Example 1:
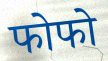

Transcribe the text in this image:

फोफो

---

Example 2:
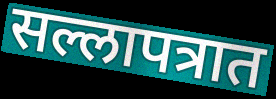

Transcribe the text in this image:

सल्लापत्रात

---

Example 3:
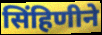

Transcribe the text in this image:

सिंहिणीने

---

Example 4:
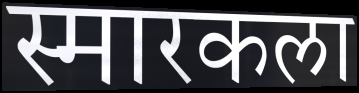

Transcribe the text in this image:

स्मारकला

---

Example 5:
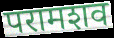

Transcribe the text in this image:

परामशव